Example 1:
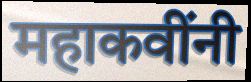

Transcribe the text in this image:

महाकवींनी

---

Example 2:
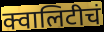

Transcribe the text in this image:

क्वालिटीचं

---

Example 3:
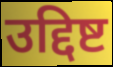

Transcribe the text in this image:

उद्दिष्ट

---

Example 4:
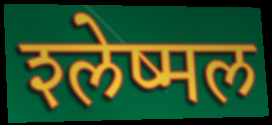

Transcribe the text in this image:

श्लेष्मल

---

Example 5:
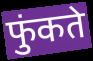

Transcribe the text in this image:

फुंकते